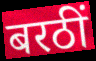
बरठीं